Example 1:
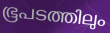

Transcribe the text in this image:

ഭൂപടത്തിലും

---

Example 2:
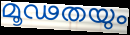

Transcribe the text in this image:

മൂഢതയും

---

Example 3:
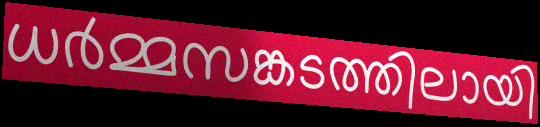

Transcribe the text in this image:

ധർമ്മസങ്കടത്തിലായി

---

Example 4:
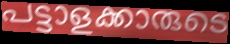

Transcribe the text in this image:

പട്ടാളക്കാരുടെ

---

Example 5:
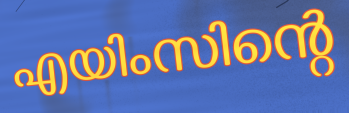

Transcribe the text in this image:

എയിംസിന്റെ